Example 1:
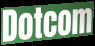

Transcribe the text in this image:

Dotcom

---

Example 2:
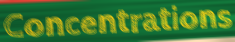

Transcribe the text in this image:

Concentrations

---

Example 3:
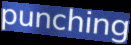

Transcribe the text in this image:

punching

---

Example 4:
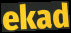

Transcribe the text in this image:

ekad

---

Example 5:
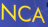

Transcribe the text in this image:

NCA